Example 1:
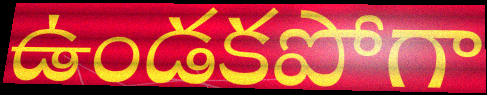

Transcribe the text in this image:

ఉండకపోగా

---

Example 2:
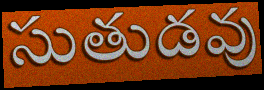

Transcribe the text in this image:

సుతుడవు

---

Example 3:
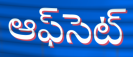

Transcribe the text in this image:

ఆఫ్‌సెట్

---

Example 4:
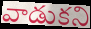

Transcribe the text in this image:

వాడుకని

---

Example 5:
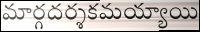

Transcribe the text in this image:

మార్గదర్శకమయ్యాయి